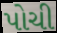
પોચી